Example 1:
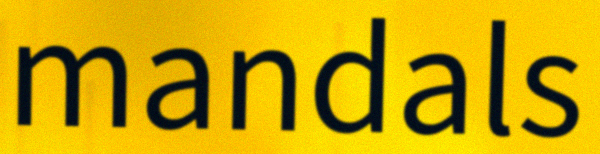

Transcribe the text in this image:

mandals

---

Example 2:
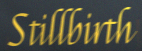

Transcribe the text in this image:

Stillbirth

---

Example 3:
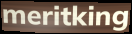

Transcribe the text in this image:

meritking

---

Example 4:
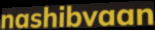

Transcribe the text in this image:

nashibvaan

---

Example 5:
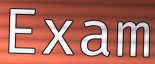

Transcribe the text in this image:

Exam